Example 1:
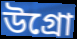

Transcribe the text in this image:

উগ্রো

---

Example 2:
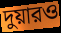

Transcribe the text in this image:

দুয়ারও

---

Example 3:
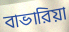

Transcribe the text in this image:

বাভারিয়া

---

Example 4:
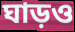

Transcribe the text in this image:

ঘাড়ও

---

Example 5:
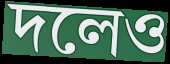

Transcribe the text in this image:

দলেও